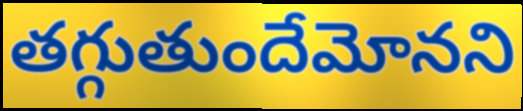
తగ్గుతుందేమోనని